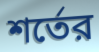
শর্তের